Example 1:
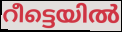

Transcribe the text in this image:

റീട്ടെയിൽ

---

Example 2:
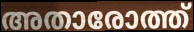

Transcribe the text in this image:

അതാരോത്ത്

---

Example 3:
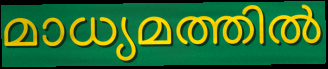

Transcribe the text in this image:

മാധ്യമത്തിൽ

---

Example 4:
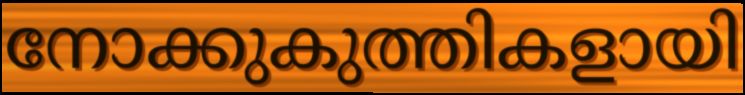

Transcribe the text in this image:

നോക്കുകുത്തികളായി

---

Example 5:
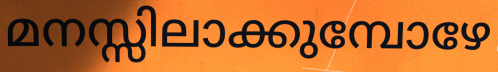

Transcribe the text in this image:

മനസ്സിലാക്കുമ്പോഴേ